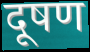
दूषण